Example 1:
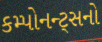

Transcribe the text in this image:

કમ્પોનન્ટ્સનો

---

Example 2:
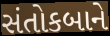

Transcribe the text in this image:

સંતોકબાને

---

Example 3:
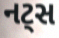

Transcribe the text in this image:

નટ્સ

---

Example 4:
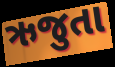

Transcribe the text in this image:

ઋજુતા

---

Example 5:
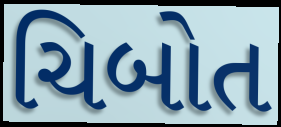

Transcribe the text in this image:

ચિબોત